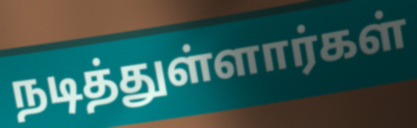
நடித்துள்ளார்கள்